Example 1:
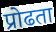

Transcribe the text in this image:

प्रोढता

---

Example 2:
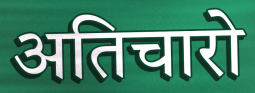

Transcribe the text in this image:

अतिचारो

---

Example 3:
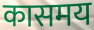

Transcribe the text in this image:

कासमय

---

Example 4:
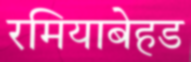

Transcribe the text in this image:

रमियाबेहड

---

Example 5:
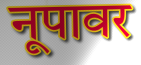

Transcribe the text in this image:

नूपावर